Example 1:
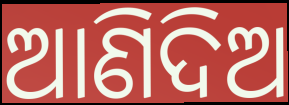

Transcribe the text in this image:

ଆଣିଦିଅ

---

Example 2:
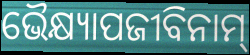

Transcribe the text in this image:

ଭୈକ୍ଷ୍ୟାପଜୀବିନାମ୍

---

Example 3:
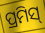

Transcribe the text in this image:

ପ୍ରମିସ୍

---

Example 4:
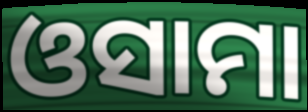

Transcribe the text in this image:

ଓସାମା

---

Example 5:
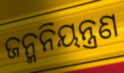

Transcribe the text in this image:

ଜନ୍ମନିୟନ୍ତ୍ରଣ